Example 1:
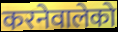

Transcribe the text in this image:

करनेवालेको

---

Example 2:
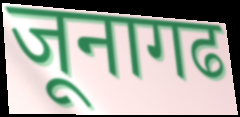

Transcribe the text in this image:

जूनागढ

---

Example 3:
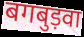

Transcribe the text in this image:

बगबुड़वा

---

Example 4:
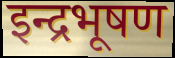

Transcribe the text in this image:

इन्द्रभूषण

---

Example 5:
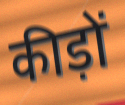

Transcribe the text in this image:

कीड़ों